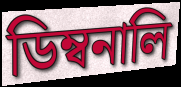
ডিম্বনালি